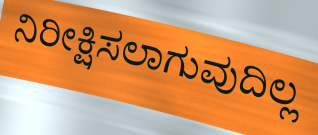
ನಿರೀಕ್ಷಿಸಲಾಗುವುದಿಲ್ಲ